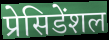
प्रेसिडेंशल